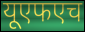
यूएफएच